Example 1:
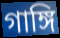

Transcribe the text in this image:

গাঙ্গি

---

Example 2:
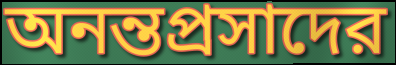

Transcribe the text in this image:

অনন্তপ্রসাদের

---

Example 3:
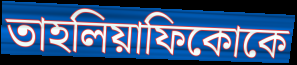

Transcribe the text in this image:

তাহলিয়াফিকোকে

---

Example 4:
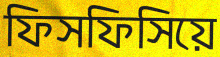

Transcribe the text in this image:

ফিসফিসিয়ে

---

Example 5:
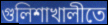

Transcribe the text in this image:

গুলিশাখালীতে